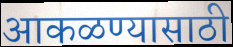
आकळण्यासाठी